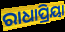
ରାଧାପ୍ରିୟା